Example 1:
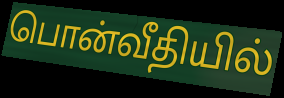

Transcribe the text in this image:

பொன்வீதியில்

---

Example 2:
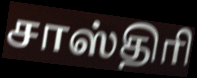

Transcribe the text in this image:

சாஸ்திரி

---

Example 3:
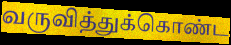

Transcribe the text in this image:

வருவித்துக்கொண்ட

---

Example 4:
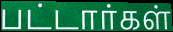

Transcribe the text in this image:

பட்டார்கள்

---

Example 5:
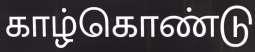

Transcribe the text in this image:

காழ்கொண்டு